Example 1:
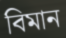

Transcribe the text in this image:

বিমান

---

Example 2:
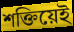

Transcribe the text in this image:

শক্তিয়েই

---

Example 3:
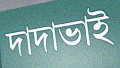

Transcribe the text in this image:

দাদাভাই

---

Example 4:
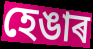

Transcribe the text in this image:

হেঙাৰ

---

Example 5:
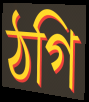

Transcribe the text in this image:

ঠগি